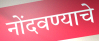
नोंदवण्याचे